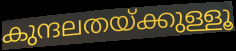
കുന്ദലതയ്ക്കുള്ളൂ